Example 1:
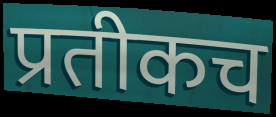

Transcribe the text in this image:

प्रतीकच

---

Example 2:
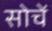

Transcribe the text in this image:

सोचें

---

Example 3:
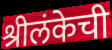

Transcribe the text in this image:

श्रीलंकेची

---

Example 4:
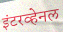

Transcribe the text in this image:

इंटरव्हेनल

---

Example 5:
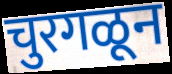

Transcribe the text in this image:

चुरगळून